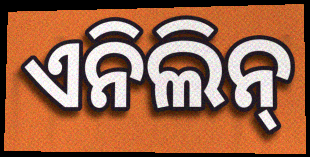
ଏନିଲିନ୍